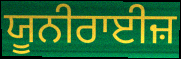
ਯੂਨੀਰਾਈਜ਼